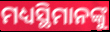
ମଧ୍ୟସ୍ଥିମାନଙ୍କୁ